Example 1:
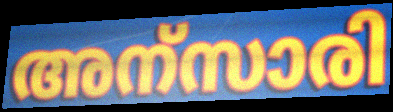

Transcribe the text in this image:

അന്സാരി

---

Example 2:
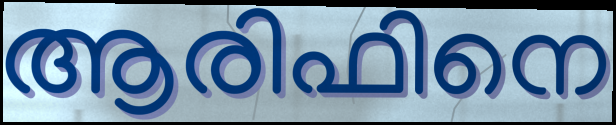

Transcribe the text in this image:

ആരിഫിനെ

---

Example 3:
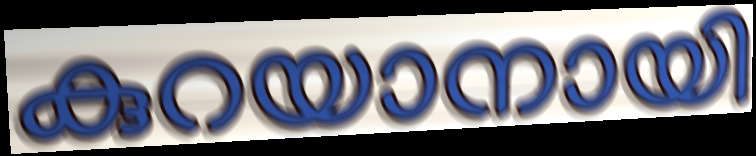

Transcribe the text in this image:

കുറയാനായി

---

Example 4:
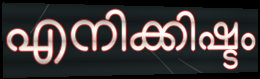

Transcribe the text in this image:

എനിക്കിഷ്ടം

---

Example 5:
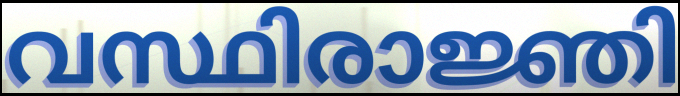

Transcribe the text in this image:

വസ്ഥിരാജ്ഞി